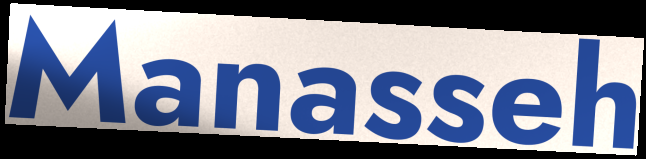
Manasseh